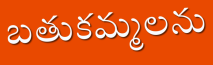
బతుకమ్మలను